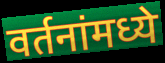
वर्तनांमध्ये